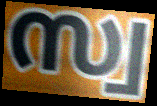
സ്വ